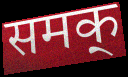
समक्